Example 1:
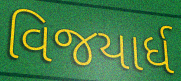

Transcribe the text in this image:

વિજયાર્ધ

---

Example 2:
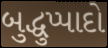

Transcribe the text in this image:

બુદ્ધુપ્પાદો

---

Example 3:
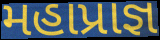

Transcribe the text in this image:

મહાપ્રાજ્ઞ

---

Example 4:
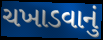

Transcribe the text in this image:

ચખાડવાનું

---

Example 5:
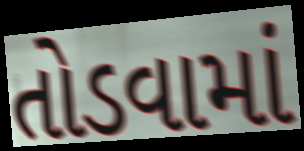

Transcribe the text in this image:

તોડવામાં